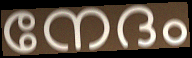
നേദം